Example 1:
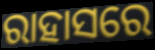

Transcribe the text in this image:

ରାହାସରେ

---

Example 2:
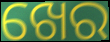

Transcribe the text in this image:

ଖେର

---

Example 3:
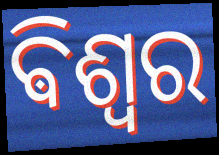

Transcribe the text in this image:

ଵିଶ୍ୱର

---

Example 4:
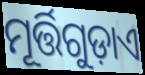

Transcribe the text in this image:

ମୂର୍ତ୍ତିଗୁଡ଼ାଏ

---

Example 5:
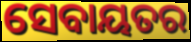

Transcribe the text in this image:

ସେବାୟତର